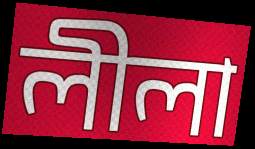
লীলা